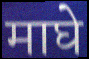
माघे